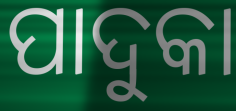
ପାଦୁକା